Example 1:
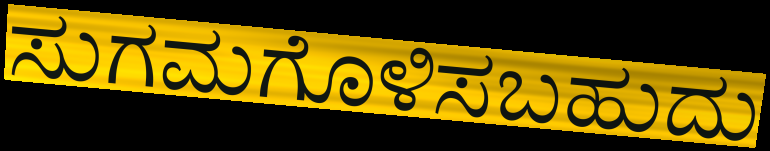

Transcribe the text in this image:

ಸುಗಮಗೊಳಿಸಬಹುದು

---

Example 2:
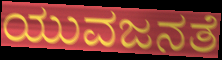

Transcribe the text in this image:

ಯುವಜನತೆ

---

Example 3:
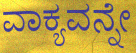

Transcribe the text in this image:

ವಾಕ್ಯವನ್ನೇ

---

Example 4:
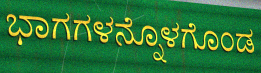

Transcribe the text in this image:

ಭಾಗಗಳನ್ನೊಳಗೊಂಡ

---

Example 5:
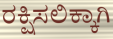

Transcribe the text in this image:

ರಕ್ಷಿಸಲಿಕ್ಕಾಗಿ